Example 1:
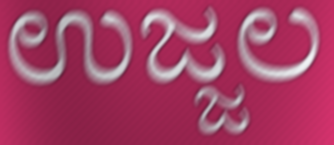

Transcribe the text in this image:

ಉಜ್ಜಲ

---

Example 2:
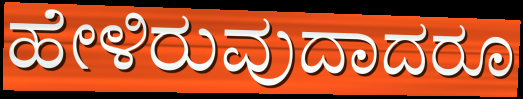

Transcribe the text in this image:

ಹೇಳಿರುವುದಾದರೂ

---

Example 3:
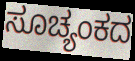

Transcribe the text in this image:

ಸೂಚ್ಯಂಕದ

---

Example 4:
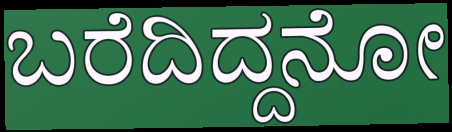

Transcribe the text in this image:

ಬರೆದಿದ್ದನೋ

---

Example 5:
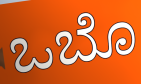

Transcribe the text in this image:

ಒಬೊ